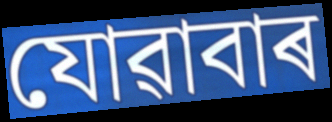
যোৱাবাৰ